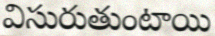
విసురుతుంటాయి